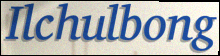
Ilchulbong